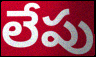
లేపు